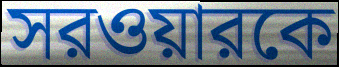
সরওয়ারকে